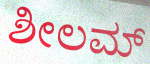
ಶೀಲಮ್